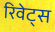
रिवेट्स